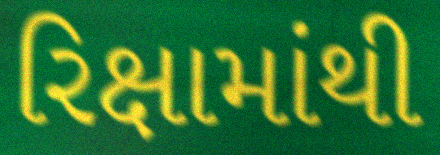
રિક્ષામાંથી